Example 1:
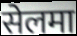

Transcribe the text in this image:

सेलमा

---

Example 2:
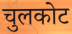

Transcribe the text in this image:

चुलकोट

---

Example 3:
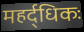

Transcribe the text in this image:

महर्द्धिकः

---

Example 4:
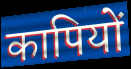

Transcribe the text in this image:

कापियों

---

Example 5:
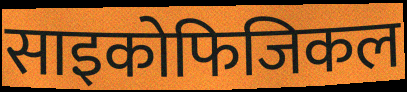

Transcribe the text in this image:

साइकोफिजिकल